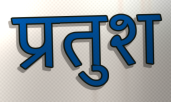
प्रतुश